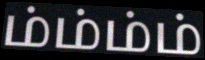
ம்ம்ம்ம்